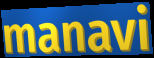
manavi